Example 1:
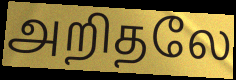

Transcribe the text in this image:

அறிதலே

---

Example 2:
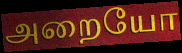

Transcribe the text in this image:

அறையோ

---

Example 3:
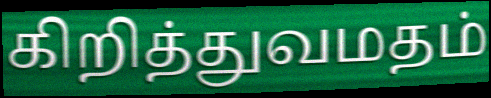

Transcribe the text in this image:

கிறித்துவமதம்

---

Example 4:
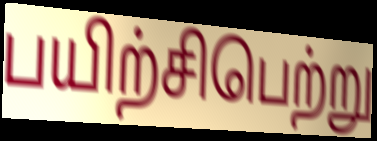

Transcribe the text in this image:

பயிற்சிபெற்று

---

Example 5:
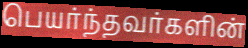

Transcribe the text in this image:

பெயர்ந்தவர்களின்